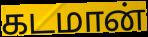
கடமான்